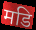
मडि